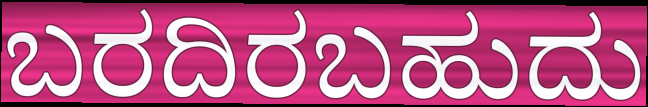
ಬರದಿರಬಹುದು